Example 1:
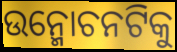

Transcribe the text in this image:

ଉନ୍ମୋଚନଟିକୁ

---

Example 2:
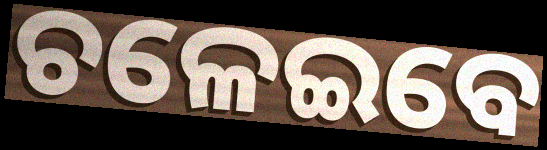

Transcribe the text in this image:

ଚଳେଇବେ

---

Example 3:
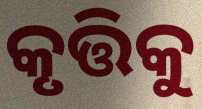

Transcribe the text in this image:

କୃତ୍ତିକୁ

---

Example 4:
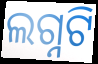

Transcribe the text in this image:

ଲଗ୍ନଟି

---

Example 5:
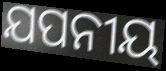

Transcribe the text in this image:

ଯପନୀୟ